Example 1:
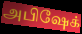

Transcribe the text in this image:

அபிஷேக்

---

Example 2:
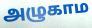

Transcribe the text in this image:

அழுகாம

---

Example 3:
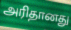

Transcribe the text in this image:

அரிதானது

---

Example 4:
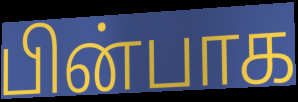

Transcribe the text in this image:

பின்பாக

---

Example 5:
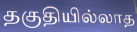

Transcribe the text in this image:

தகுதியில்லாத